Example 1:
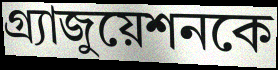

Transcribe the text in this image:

গ্র্যাজুয়েশনকে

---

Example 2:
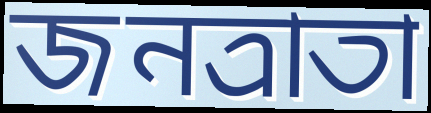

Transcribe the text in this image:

জনত্রাতা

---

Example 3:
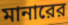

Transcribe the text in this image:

মানারের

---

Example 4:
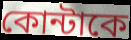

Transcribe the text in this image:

কোন্টাকে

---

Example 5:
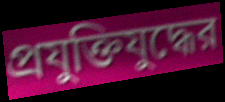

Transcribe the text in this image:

প্রযুক্তিযুদ্ধের